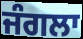
ਜੰਗਲਾ